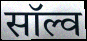
सॉल्व